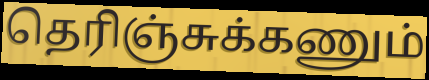
தெரிஞ்சுக்கணும்